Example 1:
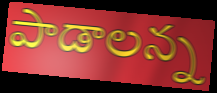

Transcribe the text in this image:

పాడాలన్న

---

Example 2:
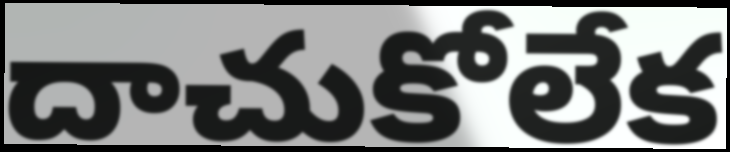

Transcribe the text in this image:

దాచుకోలేక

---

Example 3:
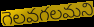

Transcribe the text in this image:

గెలవగలమని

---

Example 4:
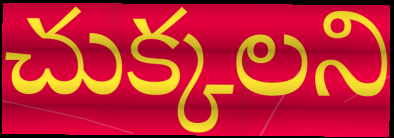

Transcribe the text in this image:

చుక్కలని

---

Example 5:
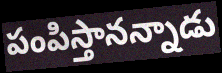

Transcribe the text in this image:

పంపిస్తానన్నాడు